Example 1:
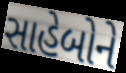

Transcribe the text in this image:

સાહેબોને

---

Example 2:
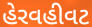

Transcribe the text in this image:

હેરવહીવટ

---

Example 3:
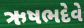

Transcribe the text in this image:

ઋષભદેવે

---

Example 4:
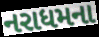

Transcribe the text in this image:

નરાધમના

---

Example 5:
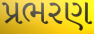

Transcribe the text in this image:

પ્રભરણ